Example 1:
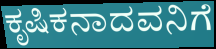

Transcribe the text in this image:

ಕೃಷಿಕನಾದವನಿಗೆ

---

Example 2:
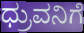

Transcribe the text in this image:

ಧ್ರುವನಿಗೆ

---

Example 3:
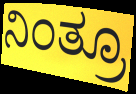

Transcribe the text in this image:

ನಿಂತ್ರೂ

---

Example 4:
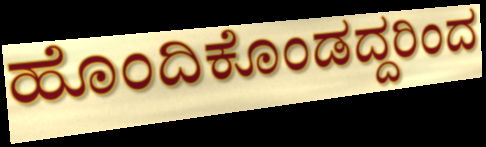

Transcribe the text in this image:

ಹೊಂದಿಕೊಂಡದ್ದರಿಂದ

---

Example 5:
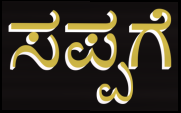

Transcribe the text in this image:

ಸಪ್ಪಗೆ